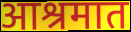
आश्रमात